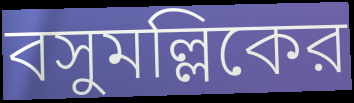
বসুমল্লিকের